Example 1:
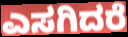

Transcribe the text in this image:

ಎಸಗಿದರೆ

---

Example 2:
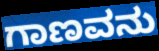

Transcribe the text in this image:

ಗಾಣವನು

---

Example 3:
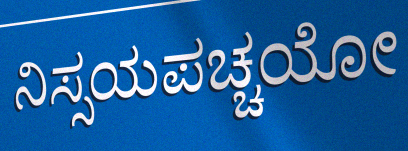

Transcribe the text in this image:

ನಿಸ್ಸಯಪಚ್ಚಯೋ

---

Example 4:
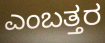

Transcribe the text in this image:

ಎಂಬತ್ತರ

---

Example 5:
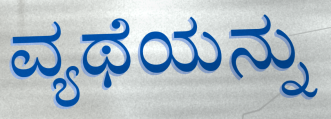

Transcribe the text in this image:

ವ್ಯಥೆಯನ್ನು